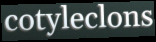
cotyleclons